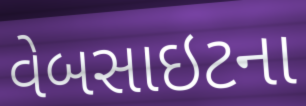
વેબસાઇટના